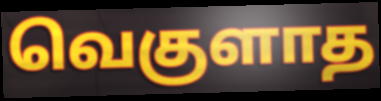
வெகுளாத